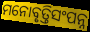
ମନୋବୃତ୍ତିସଂପନ୍ନ